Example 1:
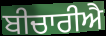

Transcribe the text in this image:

ਬੀਚਾਰੀਐ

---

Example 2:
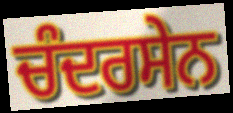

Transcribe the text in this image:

ਚੰਦਰਸੇਨ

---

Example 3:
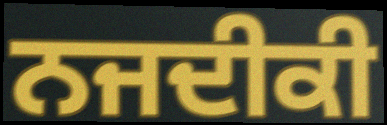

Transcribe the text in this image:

ਨਜਦੀਕੀ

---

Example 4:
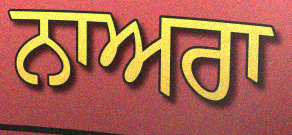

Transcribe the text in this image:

ਨਾਅਰਾ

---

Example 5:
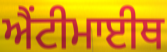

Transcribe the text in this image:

ਐਂਟੀਮਾਈਥ